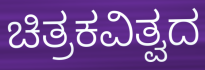
ಚಿತ್ರಕವಿತ್ವದ